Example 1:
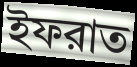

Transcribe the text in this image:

ইফরাত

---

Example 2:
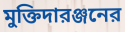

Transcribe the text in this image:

মুক্তিদারঞ্জনের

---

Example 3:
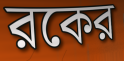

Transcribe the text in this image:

রকের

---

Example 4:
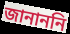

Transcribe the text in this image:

জানাননি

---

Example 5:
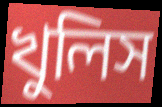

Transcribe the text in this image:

খুলিস